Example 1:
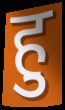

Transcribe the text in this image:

हु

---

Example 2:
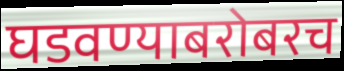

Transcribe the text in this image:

घडवण्याबरोबरच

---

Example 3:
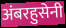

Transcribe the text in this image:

अंबरहुसेनी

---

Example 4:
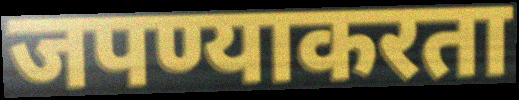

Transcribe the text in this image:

जपण्याकरता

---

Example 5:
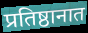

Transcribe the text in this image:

प्रतिष्ठानात